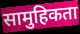
सामुहिकता